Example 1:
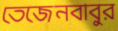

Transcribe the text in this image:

তেজেনবাবুর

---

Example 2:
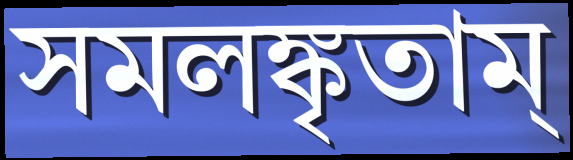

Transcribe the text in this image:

সমলঙ্কৃতাম্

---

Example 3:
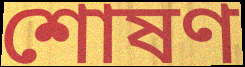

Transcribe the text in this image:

শোষণ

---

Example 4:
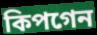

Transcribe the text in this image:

কিপগেন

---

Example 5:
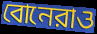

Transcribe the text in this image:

বোনেরাও